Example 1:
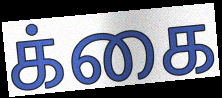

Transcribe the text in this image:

க்கை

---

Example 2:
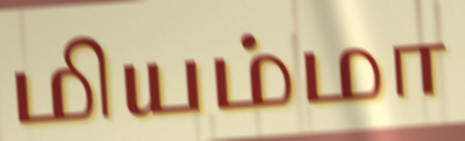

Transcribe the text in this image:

மியம்மா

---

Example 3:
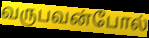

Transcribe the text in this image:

வருபவன்போல்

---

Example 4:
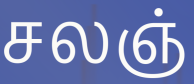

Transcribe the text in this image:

சலஞ்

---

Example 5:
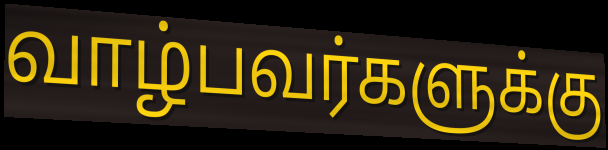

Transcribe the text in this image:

வாழ்பவர்களுக்கு